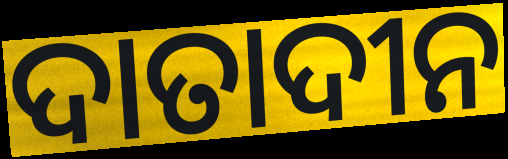
ଦାତାଦୀନ